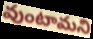
వుంటామని